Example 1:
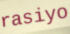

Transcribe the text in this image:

rasiyo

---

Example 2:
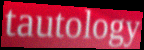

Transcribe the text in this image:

tautology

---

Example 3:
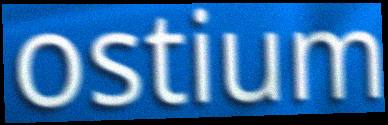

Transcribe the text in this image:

ostium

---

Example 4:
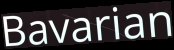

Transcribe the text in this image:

Bavarian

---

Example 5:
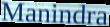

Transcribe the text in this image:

Manindra